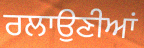
ਰਲਾਉਣੀਆਂ